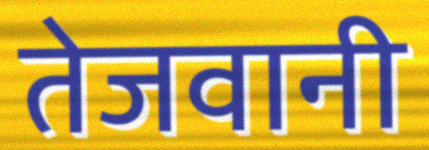
तेजवानी